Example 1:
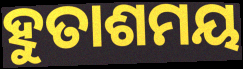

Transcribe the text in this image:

ହୁତାଶମୟ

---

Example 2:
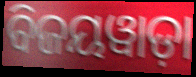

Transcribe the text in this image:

ବିଜୟୱାଡ଼ା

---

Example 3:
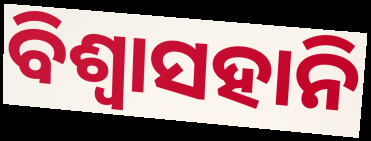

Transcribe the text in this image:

ବିଶ୍ବାସହାନି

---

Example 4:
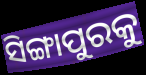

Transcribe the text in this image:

ସିଙ୍ଗାପୁରକୁ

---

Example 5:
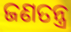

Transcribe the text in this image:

ଜଣତନ୍ତ୍ର